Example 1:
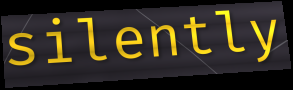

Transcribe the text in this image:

silently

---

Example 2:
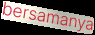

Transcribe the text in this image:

bersamanya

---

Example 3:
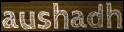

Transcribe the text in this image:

aushadh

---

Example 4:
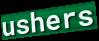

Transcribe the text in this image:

ushers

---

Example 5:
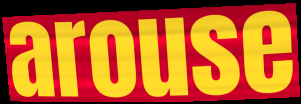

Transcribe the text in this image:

arouse